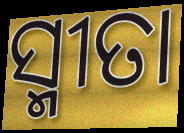
ସ୍ମୀତା